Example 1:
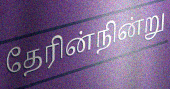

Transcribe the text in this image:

தேரின்நின்று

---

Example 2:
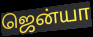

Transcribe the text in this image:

ஜென்யா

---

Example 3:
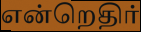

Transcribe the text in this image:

என்றெதிர்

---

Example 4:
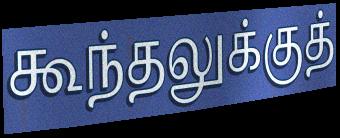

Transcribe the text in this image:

கூந்தலுக்குத்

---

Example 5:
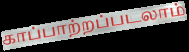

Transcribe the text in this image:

காப்பாற்றப்படலாம்